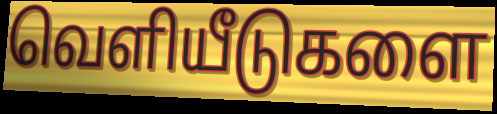
வெளியீடுகளை